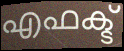
എഫക്ട്